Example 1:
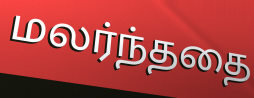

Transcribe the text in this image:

மலர்ந்ததை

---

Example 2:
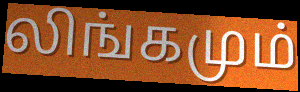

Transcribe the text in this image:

லிங்கமும்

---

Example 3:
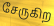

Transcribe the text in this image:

சேருகிற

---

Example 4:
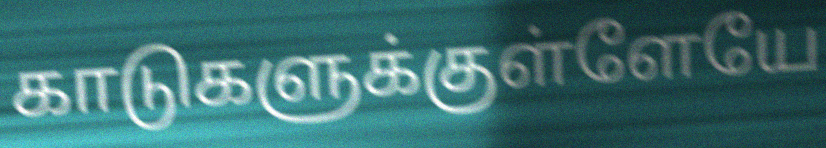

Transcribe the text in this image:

காடுகளுக்குள்ளேயே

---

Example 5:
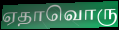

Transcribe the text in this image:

ஏதாவொரு